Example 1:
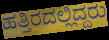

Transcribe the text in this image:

ಹತ್ತಿರದಲ್ಲಿದ್ದರು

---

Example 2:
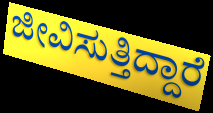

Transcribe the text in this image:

ಜೀವಿಸುತ್ತಿದ್ದಾರೆ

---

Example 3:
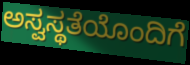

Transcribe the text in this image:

ಅಸ್ವಸ್ಥತೆಯೊಂದಿಗೆ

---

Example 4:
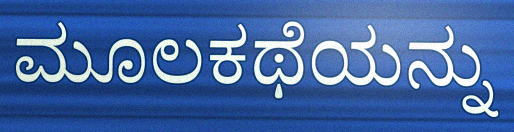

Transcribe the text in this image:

ಮೂಲಕಥೆಯನ್ನು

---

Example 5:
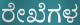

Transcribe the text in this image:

ರೇಖೆಗಳ